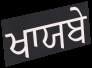
ਖਾਯਬੇ